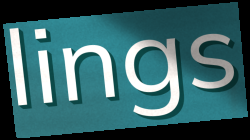
lings